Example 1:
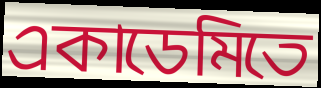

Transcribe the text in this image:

একাডেমিতে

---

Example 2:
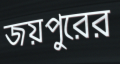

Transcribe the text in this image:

জয়পুরের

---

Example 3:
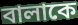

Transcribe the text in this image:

বালাকে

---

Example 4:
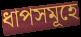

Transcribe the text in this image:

ধাপসমূহে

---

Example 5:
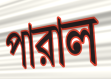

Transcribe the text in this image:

পারাল